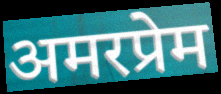
अमरप्रेम